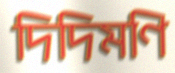
দিদিমণি